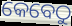
କେବେଠୁ